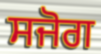
ਸਜੋਗ